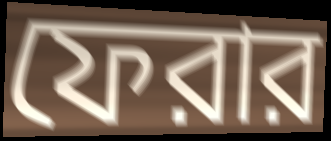
ফেরার